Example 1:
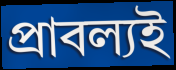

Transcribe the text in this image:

প্রাবল্যই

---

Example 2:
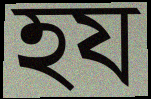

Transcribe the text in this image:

হয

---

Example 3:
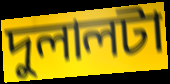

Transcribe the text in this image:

দুলালটা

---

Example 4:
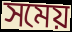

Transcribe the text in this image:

সমেয়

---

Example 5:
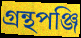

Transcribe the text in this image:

গ্রন্থপঞ্জি